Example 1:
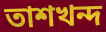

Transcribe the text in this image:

তাশখন্দ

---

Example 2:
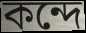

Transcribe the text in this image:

কন্দে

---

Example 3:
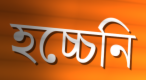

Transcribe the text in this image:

হচ্চেনি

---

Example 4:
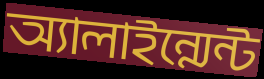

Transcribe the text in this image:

অ্যালাইন্মেন্ট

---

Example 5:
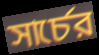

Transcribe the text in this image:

সার্চের